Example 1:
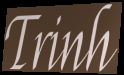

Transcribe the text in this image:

Trinh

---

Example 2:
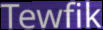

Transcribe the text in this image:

Tewfik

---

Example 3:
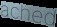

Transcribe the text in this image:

ached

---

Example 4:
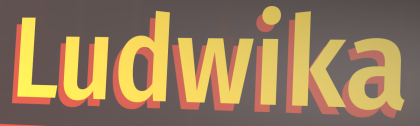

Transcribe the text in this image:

Ludwika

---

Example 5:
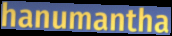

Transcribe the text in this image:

hanumantha